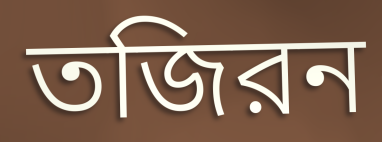
তজিরন